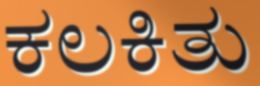
ಕಲಕಿತು